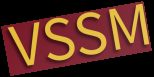
VSSM